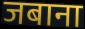
जबाना